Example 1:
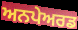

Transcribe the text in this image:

ਅਨਪੇਅਰਡ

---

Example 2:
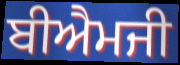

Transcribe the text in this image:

ਬੀਐਮਜੀ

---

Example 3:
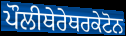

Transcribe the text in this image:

ਪੌਲੀਥੇਰੇਥਰਕੇਟੋਨ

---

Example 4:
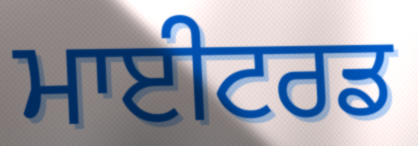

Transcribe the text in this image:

ਮਾਈਟਰਡ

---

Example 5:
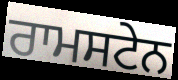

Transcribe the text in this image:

ਰਾਮਸਟੇਨ